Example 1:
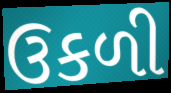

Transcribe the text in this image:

ઉકળી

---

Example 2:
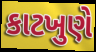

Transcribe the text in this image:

કાટખુણે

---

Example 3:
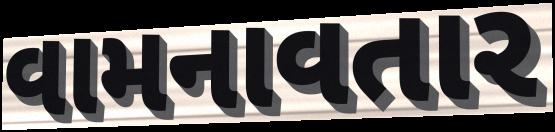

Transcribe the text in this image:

વામનાવતાર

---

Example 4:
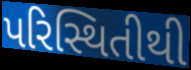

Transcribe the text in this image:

પરિસ્થિતીથી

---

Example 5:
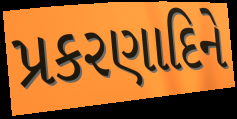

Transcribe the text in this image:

પ્રકરણાદિને